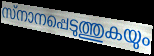
സ്‌നാനപ്പെടുത്തുകയും